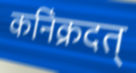
कनि॑क्रदत्